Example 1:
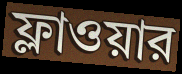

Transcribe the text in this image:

ফ্লাওয়ার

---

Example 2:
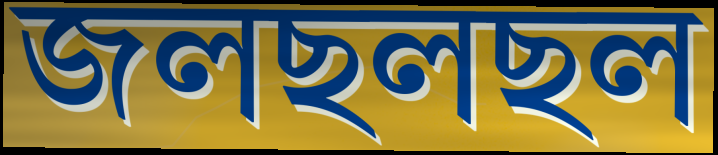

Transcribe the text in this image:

জলছলছল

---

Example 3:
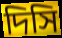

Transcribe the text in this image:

দিসি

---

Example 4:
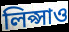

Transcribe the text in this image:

লিপ্সাও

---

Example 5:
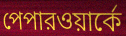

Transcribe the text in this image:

পেপারওয়ার্কে